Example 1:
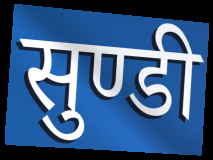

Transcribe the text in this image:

सुण्डी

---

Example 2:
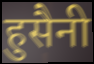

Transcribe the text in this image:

हुसैनी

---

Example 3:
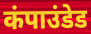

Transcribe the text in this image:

कंपाउंडेड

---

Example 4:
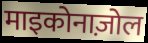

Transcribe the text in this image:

माइकोनाज़ोल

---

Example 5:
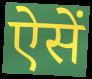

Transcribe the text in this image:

ऐसें